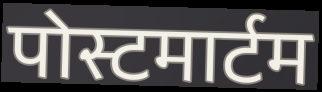
पोस्‍टमार्टम